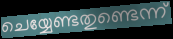
ചെയ്യേണ്ടതുണ്ടെന്ന്